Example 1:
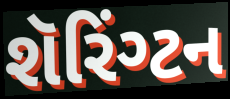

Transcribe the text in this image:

શૅરિંગ્ટન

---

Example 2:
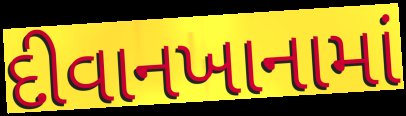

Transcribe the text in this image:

દીવાનખાનામાં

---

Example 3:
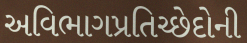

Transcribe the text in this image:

અવિભાગપ્રતિચ્છેદોની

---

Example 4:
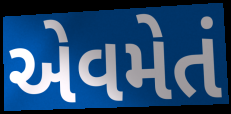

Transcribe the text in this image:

એવમેતં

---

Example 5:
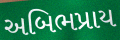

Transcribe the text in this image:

અબિભપ્રાય